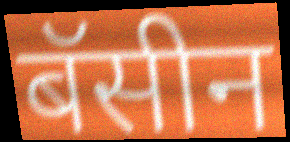
बॅसीन